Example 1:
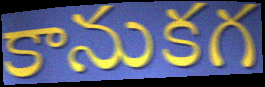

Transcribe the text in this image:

కానుకగ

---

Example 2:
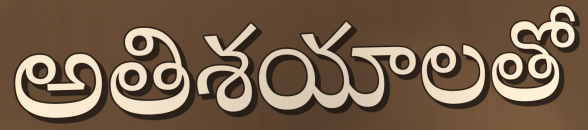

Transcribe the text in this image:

అతిశయాలతో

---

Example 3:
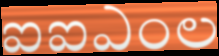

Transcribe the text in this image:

ఐఐఎంల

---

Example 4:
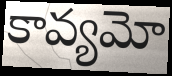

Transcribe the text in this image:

కావ్యమో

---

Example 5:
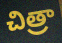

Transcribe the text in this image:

చిత్రా